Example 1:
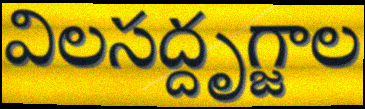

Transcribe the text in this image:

విలసద్దృగ్జాల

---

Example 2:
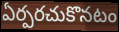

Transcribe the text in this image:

ఏర్పరచుకొనటం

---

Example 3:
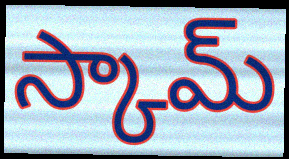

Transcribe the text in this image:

స్కామ్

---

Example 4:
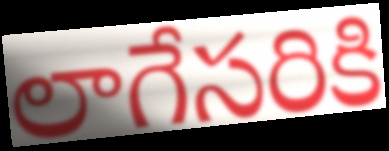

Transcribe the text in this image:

లాగేసరికి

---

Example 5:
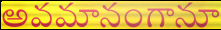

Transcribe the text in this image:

అవమానంగానూ